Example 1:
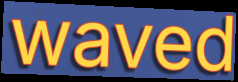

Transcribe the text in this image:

waved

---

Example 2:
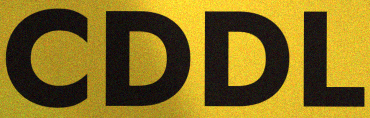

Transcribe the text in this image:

CDDL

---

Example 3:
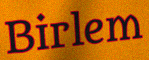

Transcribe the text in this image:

Birlem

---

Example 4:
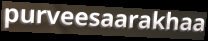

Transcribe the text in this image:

purveesaarakhaa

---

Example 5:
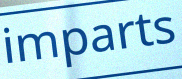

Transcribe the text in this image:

imparts